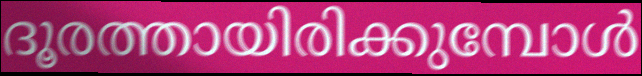
ദൂരത്തായിരിക്കുമ്പോൾ